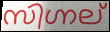
സിഗ്നല്